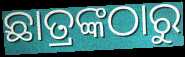
ଛାତ୍ରଙ୍କଠାରୁ